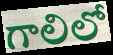
గాలిలో